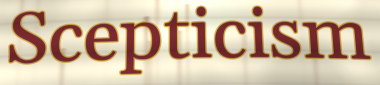
Scepticism